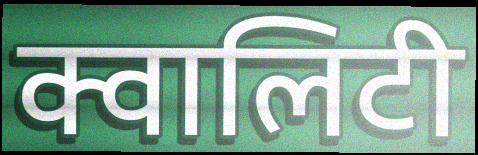
क्वालिटी